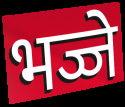
भज्जे